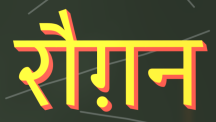
रौग़न